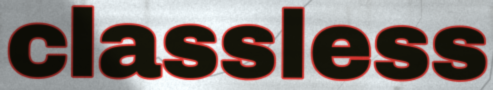
classless